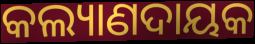
କଲ୍ୟାଣଦାୟକ